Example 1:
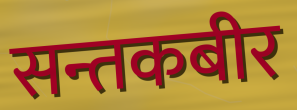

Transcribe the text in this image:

सन्तकबीर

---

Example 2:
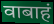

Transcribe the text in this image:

वाबाहं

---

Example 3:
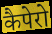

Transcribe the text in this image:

कैपेरो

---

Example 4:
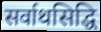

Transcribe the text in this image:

सर्वाथसिद्धि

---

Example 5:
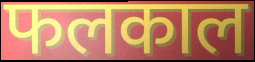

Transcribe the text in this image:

फलकाल